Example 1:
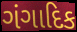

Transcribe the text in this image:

ગંગાદિક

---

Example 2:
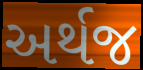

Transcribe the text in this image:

અર્થજ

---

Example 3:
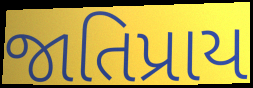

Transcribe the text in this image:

જાતિપ્રાય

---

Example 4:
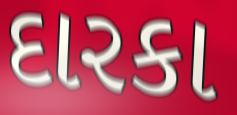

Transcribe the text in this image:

દારકા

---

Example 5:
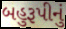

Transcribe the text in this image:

બહુરૂપીનું